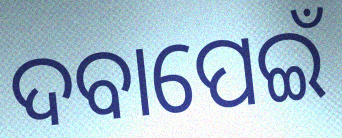
ଦବାପେଇଁ